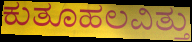
ಕುತೂಹಲವಿತ್ತು